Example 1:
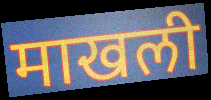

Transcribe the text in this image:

माखली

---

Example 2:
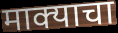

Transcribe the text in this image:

माक्याचा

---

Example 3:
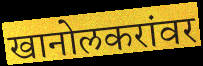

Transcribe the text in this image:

खानोलकरांवर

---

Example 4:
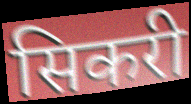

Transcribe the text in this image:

सिकरी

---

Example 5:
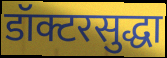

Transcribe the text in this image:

डॉक्टरसुद्धा